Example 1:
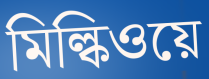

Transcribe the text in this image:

মিল্কিওয়ে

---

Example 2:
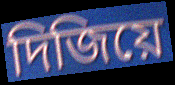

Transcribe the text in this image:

দিজিয়ে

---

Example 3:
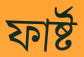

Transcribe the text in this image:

ফার্ষ্ট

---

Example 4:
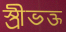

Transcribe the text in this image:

স্ত্রীভক্ত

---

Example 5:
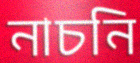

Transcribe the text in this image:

নাচনি